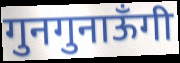
गुनगुनाऊँगी